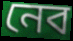
নেব